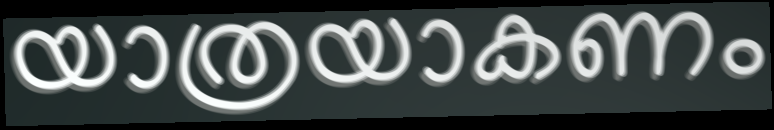
യാത്രയാകണം